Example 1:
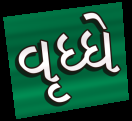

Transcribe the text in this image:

વૃધ્ધે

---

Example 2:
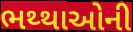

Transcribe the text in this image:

ભથ્થાઓની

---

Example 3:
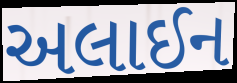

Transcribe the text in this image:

અલાઈન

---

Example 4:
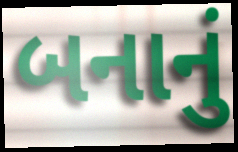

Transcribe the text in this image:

બનાનું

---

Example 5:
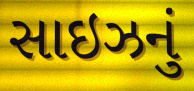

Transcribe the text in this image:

સાઇઝનું